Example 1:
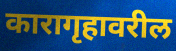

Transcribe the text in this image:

कारागृहावरील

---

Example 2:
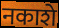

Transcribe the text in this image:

नकाशे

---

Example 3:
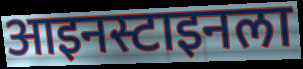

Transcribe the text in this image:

आइनस्टाइनला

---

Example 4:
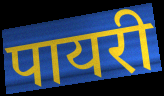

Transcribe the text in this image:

पायरी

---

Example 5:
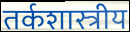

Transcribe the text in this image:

तर्कशास्त्रीय